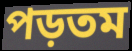
পড়তম